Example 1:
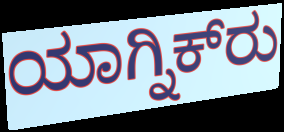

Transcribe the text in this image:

ಯಾಗ್ನಿಕ್‍ರು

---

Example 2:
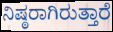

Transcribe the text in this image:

ನಿಷ್ಠರಾಗಿರುತ್ತಾರೆ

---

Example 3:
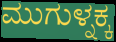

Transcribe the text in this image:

ಮುಗುಳ್ನಕ್ಕ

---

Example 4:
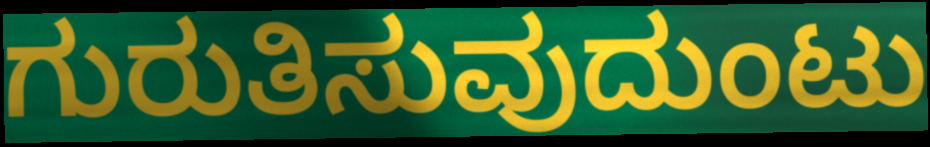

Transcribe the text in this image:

ಗುರುತಿಸುವುದುಂಟು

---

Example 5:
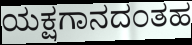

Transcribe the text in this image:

ಯಕ್ಷಗಾನದಂತಹ